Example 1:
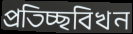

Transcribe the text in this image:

প্ৰতিচ্ছবিখন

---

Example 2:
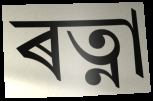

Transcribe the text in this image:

ৰত্না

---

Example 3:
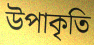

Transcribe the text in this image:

উপাকৃতি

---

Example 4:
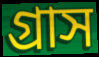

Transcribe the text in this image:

গ্ৰাস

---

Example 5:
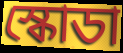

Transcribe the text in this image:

স্কোডা